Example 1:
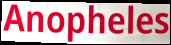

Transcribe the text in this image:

Anopheles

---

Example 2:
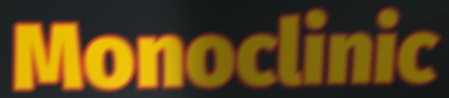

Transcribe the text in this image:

Monoclinic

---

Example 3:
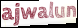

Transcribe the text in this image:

ajwalun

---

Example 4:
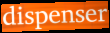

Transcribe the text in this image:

dispenser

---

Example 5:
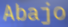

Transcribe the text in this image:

Abajo